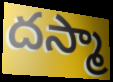
దస్మా